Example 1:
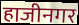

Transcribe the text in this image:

हाजीनगर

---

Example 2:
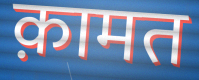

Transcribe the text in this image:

क़ामत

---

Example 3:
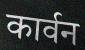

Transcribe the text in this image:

कार्वन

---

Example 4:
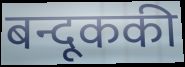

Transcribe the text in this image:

बन्दूककी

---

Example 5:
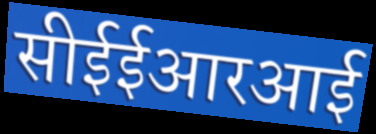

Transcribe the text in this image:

सीईईआरआई